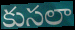
కుసలా